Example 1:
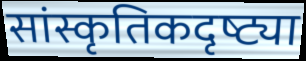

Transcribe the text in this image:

सांस्कृतिकदृष्ट्या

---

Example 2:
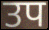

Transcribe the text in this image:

उप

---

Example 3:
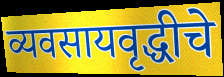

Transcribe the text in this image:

व्यवसायवृद्धीचे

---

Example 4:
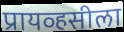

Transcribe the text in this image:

प्रायव्हसीला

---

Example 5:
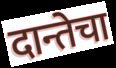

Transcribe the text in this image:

दान्तेचा